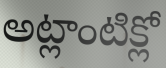
అట్లాంటిక్లో